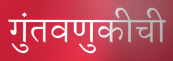
गुंतवणुकीची